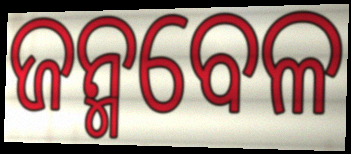
ଜନ୍ମବେଳ